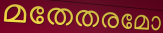
മതേതരമോ